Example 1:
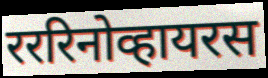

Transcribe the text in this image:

रररिनोव्हायरस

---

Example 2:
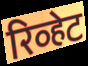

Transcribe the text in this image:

रिव्हेट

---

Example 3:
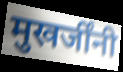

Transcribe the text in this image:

मुखर्जींनी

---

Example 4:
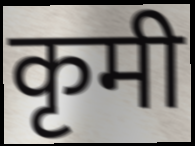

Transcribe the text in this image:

कृमी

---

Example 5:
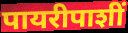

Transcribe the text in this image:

पायरीपाशीं